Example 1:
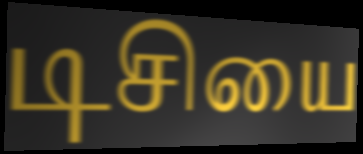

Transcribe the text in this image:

டிசியை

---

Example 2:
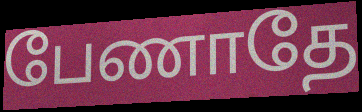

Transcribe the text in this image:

பேணாதே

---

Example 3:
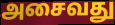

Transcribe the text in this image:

அசைவது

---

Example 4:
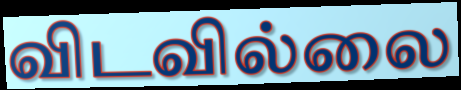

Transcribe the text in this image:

விடவில்லை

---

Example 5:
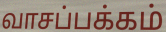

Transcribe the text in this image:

வாசப்பக்கம்